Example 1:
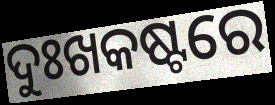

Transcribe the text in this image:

ଦୁଃଖକଷ୍ଟରେ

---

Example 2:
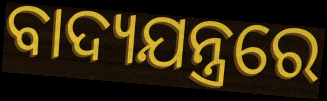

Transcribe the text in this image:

ବାଦ୍ୟଯନ୍ତ୍ରରେ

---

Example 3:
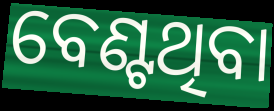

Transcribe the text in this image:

ବେଣ୍ଟଥିବା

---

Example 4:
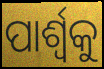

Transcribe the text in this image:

ପାର୍ଶ୍ଵକୁ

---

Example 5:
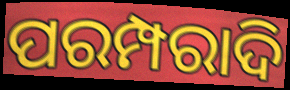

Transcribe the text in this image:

ପରମ୍ପରାଦି